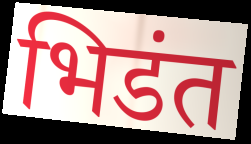
भिडंत